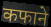
कफाने